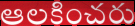
ఆలకించరు